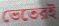
ভেতেরই